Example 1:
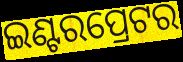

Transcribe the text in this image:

ଇଣ୍ଟରପ୍ରେଟର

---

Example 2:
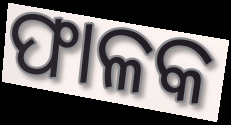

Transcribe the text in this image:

ଫାଳକ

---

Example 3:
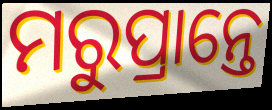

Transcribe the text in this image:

ମରୁପ୍ରାନ୍ତେ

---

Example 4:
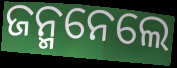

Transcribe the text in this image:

ଜନ୍ମନେଲେ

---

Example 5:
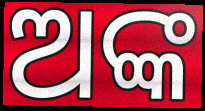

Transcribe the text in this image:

ଅଙ୍କ